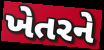
ખેતરને